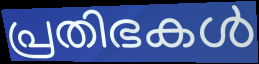
പ്രതിഭകൾ